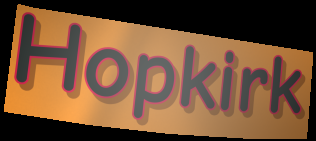
Hopkirk